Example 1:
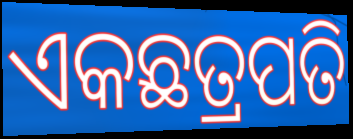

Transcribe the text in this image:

ଏକଛତ୍ରପତି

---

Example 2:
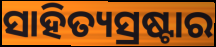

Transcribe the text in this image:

ସାହିତ୍ୟସ୍ରଷ୍ଟାର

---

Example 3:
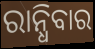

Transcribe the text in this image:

ରାନ୍ଧିବାର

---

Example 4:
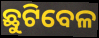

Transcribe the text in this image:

ଛୁଟିବେଳ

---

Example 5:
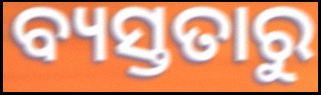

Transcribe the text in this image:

ବ୍ୟସ୍ତତାରୁ